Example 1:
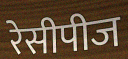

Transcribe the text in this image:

रेसीपीज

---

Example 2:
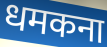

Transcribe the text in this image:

धमकना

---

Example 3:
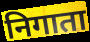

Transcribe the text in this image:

निगाता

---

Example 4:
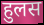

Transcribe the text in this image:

हुलस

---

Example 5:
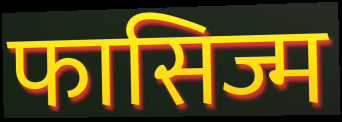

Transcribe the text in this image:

फासिज्म